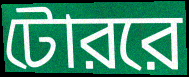
টোররে